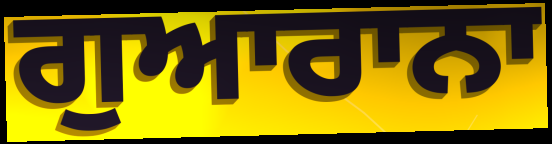
ਗੁਆਰਾਨਾ